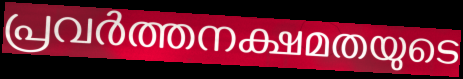
പ്രവർത്തനക്ഷമതയുടെ